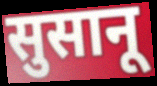
सुसानू